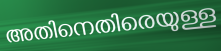
അതിനെതിരെയുള്ള